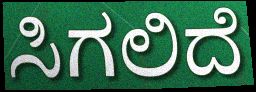
ಸಿಗಲಿದೆ